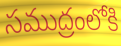
సముద్రంలోకి